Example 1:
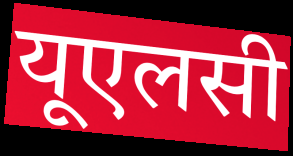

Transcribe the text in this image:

यूएलसी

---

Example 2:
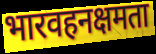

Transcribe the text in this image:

भारवहनक्षमता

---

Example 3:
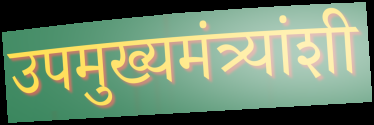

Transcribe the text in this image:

उपमुख्यमंत्र्यांशी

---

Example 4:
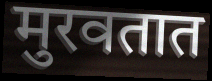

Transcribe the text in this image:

मुरवतात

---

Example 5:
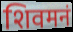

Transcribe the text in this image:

शिवमनं